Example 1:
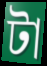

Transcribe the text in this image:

টা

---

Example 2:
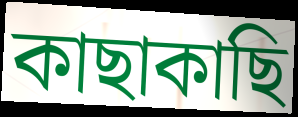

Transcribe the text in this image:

কাছাকাছি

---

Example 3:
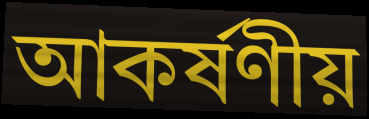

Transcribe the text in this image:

আকর্ষণীয়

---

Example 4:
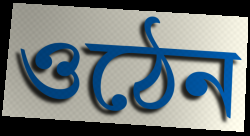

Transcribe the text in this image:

ওঠেন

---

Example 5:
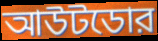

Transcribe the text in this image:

আউটডোর